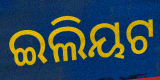
ଇଲିୟଟ